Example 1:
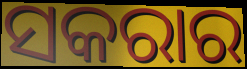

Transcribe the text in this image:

ସକରାର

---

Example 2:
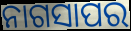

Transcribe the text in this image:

ନାଗସାପର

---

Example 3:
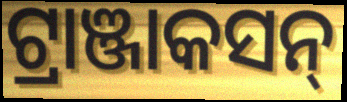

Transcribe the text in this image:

ଟ୍ରାଞ୍ଜାକସନ୍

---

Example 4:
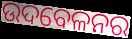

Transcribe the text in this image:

ଉଦବେଳନର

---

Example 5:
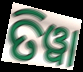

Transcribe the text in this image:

ତିୱା